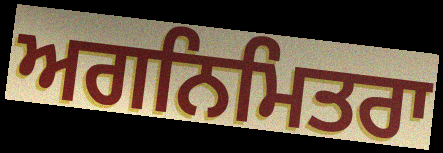
ਅਗਨਿਮਿਤਰਾ